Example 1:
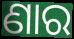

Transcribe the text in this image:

ଣାର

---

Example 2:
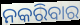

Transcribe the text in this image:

ନକରିବାର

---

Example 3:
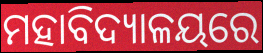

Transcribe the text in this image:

ମହାବିଦ୍ୟାଳୟରେ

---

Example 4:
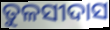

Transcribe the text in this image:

ତୁଳସୀଦାସ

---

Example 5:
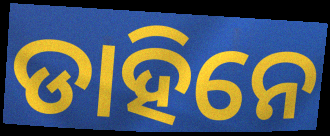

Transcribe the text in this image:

ଡାହିନେ